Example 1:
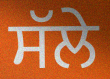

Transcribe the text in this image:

ਸੱਲੇ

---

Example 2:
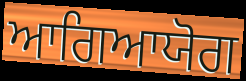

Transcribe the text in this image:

ਆਗਿਆਯੋਗ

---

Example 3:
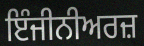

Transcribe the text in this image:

ਇੰਜੀਨੀਅਰਜ਼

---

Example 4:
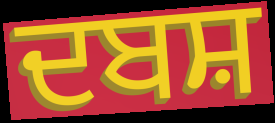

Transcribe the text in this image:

ਦਬਸ਼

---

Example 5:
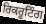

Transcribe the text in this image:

ਰਿਕਰੂਟਿੰਗ